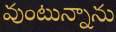
వుంటున్నాను